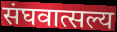
संघवात्सल्य